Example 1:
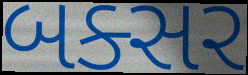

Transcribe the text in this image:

બક્સર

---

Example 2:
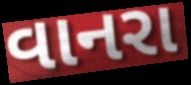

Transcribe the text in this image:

વાનરા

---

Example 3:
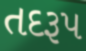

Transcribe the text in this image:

તદરૂપ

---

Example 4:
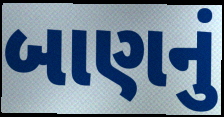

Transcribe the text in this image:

બાણનું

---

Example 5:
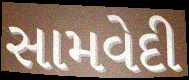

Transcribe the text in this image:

સામવેદી